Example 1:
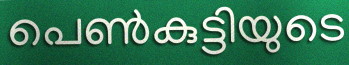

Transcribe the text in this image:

പെൺകുട്ടിയുടെ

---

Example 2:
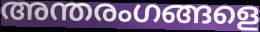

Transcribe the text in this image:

അന്തരംഗങ്ങളെ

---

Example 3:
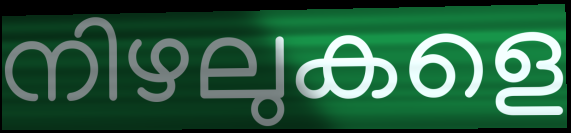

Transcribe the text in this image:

നിഴലുകളെ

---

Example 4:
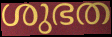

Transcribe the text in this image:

ശുഭത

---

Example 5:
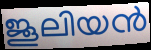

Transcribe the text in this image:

ജൂലിയൻ